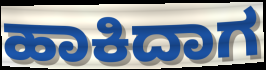
ಹಾಕಿದಾಗ